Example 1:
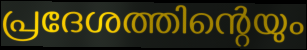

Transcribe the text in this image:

പ്രദേശത്തിന്റെയും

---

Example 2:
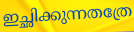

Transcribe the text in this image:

ഇച്ഛിക്കുന്നതത്രേ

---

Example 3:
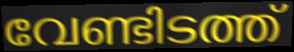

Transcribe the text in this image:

വേണ്ടിടത്ത്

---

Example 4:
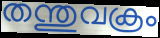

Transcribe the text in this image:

തന്തുവക്രം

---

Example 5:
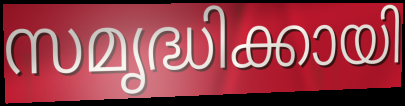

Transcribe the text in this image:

സമൃദ്ധിക്കായി